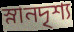
স্নানদৃশ্য